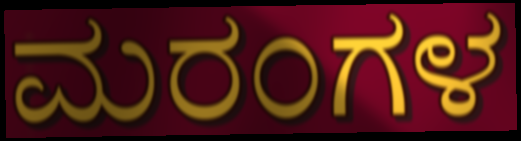
ಮರಂಗಳ